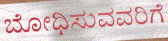
ಬೋಧಿಸುವವರಿಗೆ